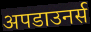
अपडाउनर्स